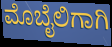
ಮೊಬೈಲಿಗಾಗಿ